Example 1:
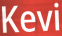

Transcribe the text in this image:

Kevi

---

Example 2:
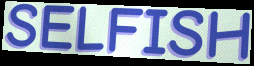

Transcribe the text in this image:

SELFISH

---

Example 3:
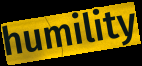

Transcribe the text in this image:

humility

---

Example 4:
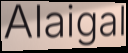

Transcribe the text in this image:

Alaigal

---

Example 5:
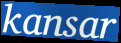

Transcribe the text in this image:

kansar